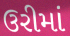
ઉરીમાં